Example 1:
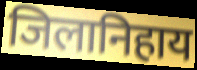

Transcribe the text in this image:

जिलानिहाय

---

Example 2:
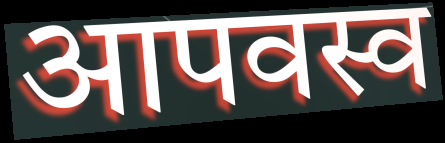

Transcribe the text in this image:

आपवस्व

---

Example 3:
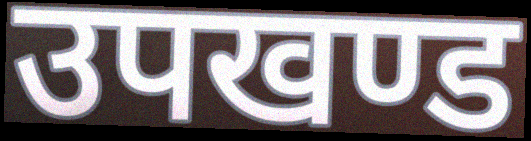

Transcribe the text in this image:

उपखण्ड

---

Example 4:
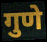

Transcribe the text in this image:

गुणे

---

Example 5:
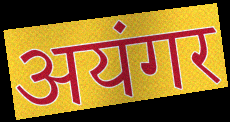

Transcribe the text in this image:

अयंगर